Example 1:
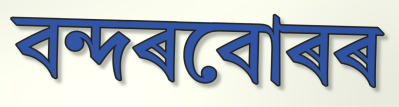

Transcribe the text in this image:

বন্দৰবোৰৰ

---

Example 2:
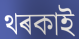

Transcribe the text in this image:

থৰকাই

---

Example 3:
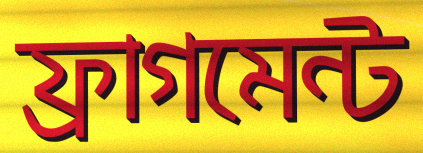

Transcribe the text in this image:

ফ্ৰাগমেন্ট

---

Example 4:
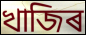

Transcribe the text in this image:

খাজিৰ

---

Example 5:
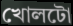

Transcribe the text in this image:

খোলটো